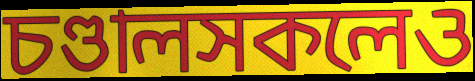
চণ্ডালসকলেও